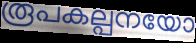
രൂപകല്പനയോ